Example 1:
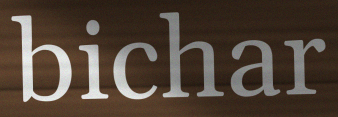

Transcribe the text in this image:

bichar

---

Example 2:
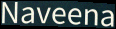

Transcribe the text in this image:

Naveena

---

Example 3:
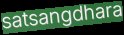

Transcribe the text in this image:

satsangdhara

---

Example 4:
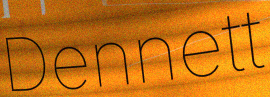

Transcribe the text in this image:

Dennett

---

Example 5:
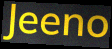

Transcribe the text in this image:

Jeeno